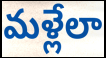
మళ్లేలా